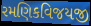
રમણિકવિજયજી